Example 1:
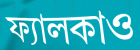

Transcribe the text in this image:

ফ্যালকাও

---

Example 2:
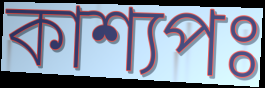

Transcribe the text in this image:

কাশ্যপঃ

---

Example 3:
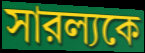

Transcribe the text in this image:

সারল্যকে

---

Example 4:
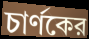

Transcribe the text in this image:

চার্ণকের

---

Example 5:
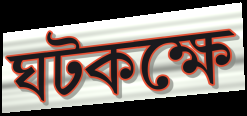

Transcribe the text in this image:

ঘটকক্ষে